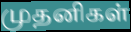
முதனிகள்